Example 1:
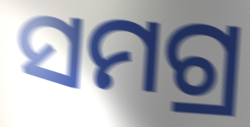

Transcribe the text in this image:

ସମଗ୍ର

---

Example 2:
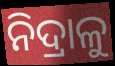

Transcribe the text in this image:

ନିଦ୍ରାଳୁ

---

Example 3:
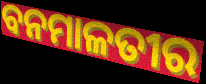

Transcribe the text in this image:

ବନମାଳତୀର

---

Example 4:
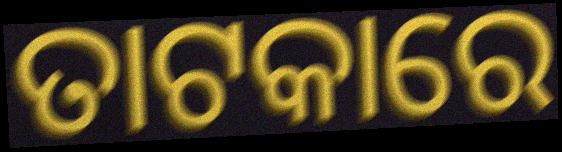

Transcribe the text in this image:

ତାଟକାରେ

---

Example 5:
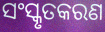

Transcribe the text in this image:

ସଂସ୍କୃତକରଣ